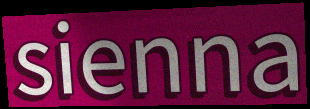
sienna